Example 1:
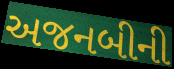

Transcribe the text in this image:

અજનબીની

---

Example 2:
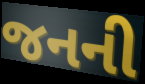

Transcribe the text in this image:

જનની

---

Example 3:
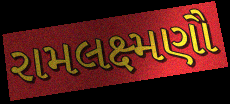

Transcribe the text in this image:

રામલક્ષ્મણૌ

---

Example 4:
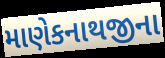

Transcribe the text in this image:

માણેકનાથજીના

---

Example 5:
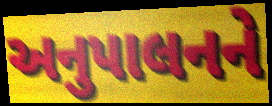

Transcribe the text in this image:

અનુપાલનને